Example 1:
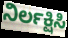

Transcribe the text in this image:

ನಿರ್ಲಕ್ಷಿಸಿ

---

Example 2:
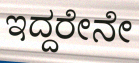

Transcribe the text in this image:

ಇದ್ದರೇನೇ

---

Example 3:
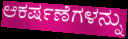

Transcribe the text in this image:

ಆಕರ್ಷಣೆಗಳನ್ನು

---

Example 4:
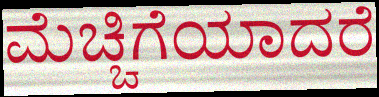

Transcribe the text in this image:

ಮೆಚ್ಚಿಗೆಯಾದರೆ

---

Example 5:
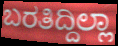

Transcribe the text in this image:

ಬರತಿದ್ದಿಲ್ಲಾ